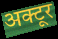
अक्टूर